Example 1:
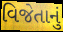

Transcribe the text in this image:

વિજેતાનું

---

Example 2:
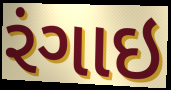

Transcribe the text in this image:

રંગાઇ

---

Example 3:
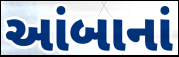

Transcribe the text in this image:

આંબાનાં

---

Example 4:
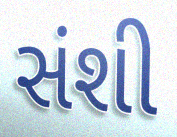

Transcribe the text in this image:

સંશી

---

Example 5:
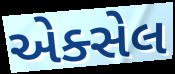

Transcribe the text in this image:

એક્સેલ